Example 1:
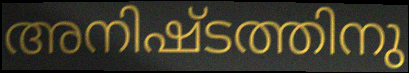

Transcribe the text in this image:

അനിഷ്ടത്തിനു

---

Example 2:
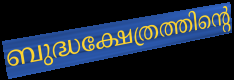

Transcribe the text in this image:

ബുദ്ധക്ഷേത്രത്തിന്റെ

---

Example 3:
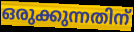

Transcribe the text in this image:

ഒരുക്കുന്നതിന്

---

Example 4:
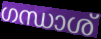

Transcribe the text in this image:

ഗന്ധാശ്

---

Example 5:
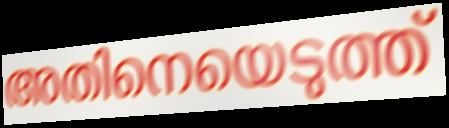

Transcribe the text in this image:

അതിനെയെടുത്ത്